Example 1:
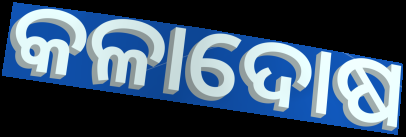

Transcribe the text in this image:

କଳାଦୋଷ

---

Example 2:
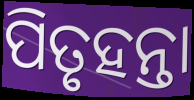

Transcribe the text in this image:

ପିତୃହନ୍ତା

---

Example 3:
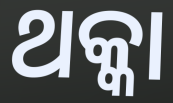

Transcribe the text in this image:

ଥକ୍କା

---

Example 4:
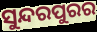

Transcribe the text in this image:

ସୁନ୍ଦରପୁରର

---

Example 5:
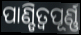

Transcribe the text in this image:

ପାଣ୍ଡିତ୍ୱପୂର୍ଣ୍ଣ